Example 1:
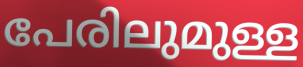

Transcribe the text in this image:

പേരിലുമുള്ള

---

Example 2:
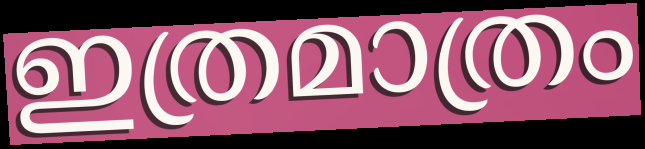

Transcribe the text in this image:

ഇത്രമാത്രം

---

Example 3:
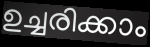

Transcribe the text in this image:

ഉച്ചരിക്കാം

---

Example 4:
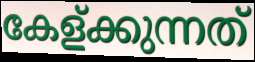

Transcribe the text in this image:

കേള്ക്കുന്നത്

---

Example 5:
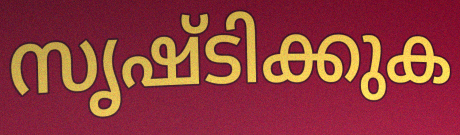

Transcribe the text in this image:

സൃഷ്ടിക്കുക